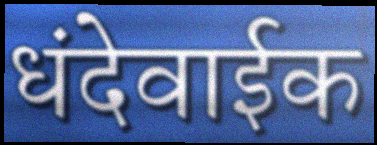
धंदेवाईक